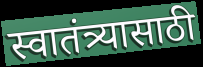
स्वातंत्र्यासाठी